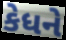
કેધને